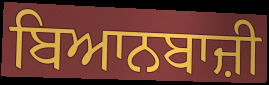
ਬਿਆਨਬਾਜ਼ੀ